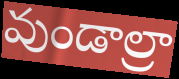
వుండాల్రా